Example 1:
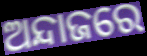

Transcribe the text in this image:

ଅନ୍ଦାଜରେ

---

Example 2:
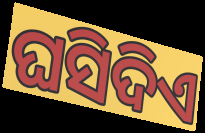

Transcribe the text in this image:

ଘସିଦିଏ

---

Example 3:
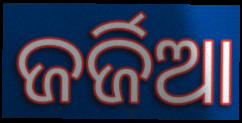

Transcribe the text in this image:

ଜର୍ଜିଆ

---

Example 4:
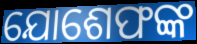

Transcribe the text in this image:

ଯୋଶେଫଙ୍କ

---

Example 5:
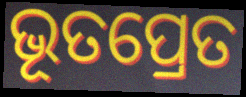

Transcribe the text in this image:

ଭୂତପ୍ରେତ